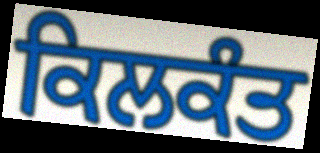
ਕਿਲਕੰਤ